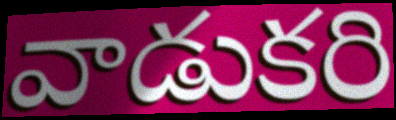
వాడుకరి